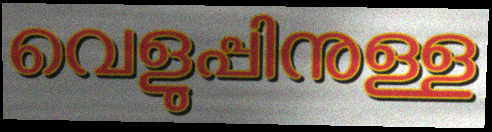
വെളുപ്പിനുള്ള